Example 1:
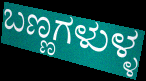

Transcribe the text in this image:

ಬಣ್ಣಗಳುಳ್ಳ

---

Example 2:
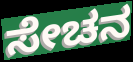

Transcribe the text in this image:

ಸೇಚನ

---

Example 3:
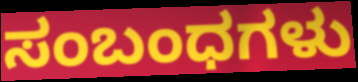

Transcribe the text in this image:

ಸಂಬಂಧಗಳು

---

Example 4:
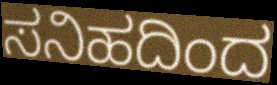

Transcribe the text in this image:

ಸನಿಹದಿಂದ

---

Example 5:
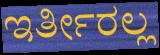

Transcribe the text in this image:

ಇರ್ತೀರಲ್ಲ